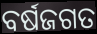
ବର୍ଷଜଗତ